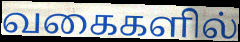
வகைகளில்